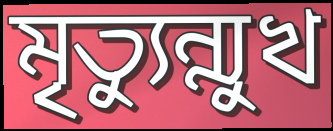
মৃত্যুন্মুখ